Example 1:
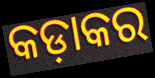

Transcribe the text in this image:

କଡ଼ାକର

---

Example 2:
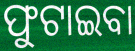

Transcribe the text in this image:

ଫୁଟାଇବା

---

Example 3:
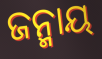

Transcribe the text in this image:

ଜନ୍ମାୟ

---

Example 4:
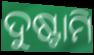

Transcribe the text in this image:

ଦୁଷ୍ଟାମି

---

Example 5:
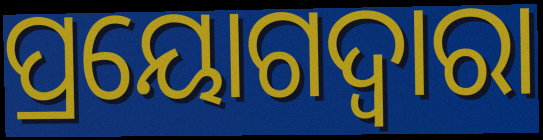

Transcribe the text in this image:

ପ୍ରୟୋଗଦ୍ଵାରା